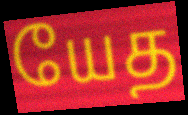
யேத